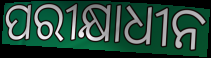
ପରୀକ୍ଷାଧୀନ